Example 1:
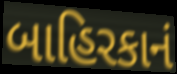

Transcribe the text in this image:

બાહિરકાનં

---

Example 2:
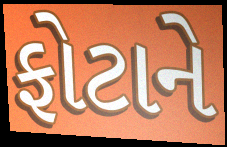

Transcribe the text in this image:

ફોટાને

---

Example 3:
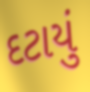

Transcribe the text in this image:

દટાયું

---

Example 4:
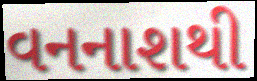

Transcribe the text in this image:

વનનાશથી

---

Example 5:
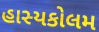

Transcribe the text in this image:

હાસ્યકોલમ